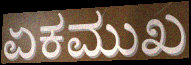
ಏಕಮುಖ